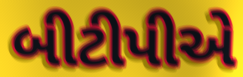
બીટીપીએ